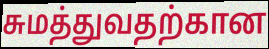
சுமத்துவதற்கான